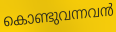
കൊണ്ടുവന്നവൻ